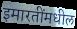
इमारतींमधील